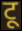
टू